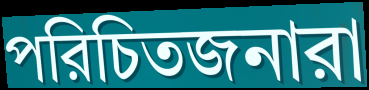
পরিচিতজনারা